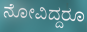
ನೋವಿದ್ದರೂ